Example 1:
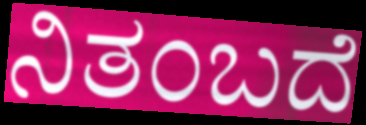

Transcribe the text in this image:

ನಿತಂಬದೆ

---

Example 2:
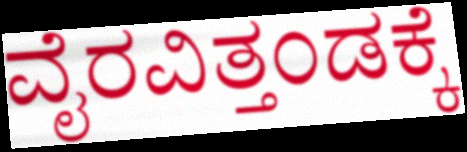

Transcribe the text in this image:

ವೈರವಿತ್ತಂಡಕ್ಕೆ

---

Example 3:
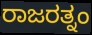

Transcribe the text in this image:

ರಾಜರತ್ನಂ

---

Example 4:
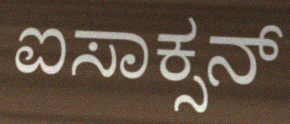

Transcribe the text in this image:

ಐಸಾಕ್ಸನ್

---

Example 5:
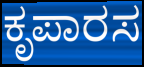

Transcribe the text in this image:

ಕೃಪಾರಸ